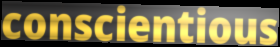
conscientious